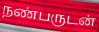
நண்பருடன்